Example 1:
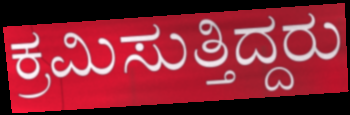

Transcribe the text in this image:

ಕ್ರಮಿಸುತ್ತಿದ್ದರು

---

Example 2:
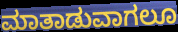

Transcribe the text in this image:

ಮಾತಾಡುವಾಗಲೂ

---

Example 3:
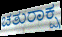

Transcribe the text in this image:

ಚತುರಾಕ್ಷ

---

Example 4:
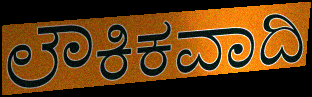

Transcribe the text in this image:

ಲೌಕಿಕವಾದಿ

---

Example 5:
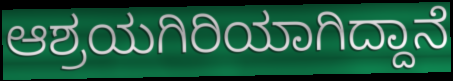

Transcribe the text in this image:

ಆಶ್ರಯಗಿರಿಯಾಗಿದ್ದಾನೆ